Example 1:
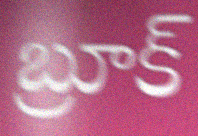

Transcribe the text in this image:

బ్రూక్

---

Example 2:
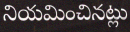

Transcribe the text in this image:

నియమించినట్లు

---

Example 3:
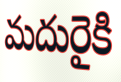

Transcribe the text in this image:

మదురైకి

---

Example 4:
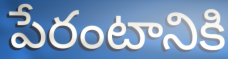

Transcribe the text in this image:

పేరంటానికి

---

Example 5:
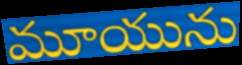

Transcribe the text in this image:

మూయును